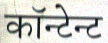
कॉन्टेन्ट